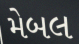
મેબલ